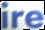
ire